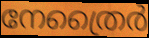
നേത്രൈർ